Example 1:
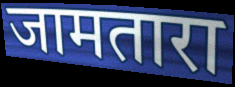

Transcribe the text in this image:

जामतारा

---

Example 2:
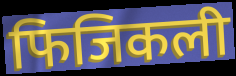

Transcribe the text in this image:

फिजिकली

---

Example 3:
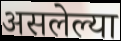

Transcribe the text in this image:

असलेल्या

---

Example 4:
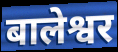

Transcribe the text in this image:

बालेश्वर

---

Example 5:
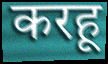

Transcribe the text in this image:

करहू